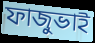
ফাজুভাই